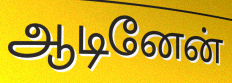
ஆடினேன்